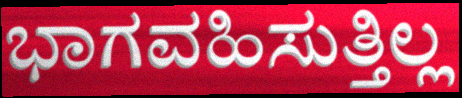
ಭಾಗವಹಿಸುತ್ತಿಲ್ಲ